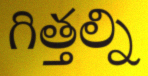
గిత్తల్ని